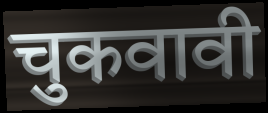
चुकवावी